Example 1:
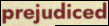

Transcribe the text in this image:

prejudiced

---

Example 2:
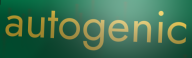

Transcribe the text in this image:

autogenic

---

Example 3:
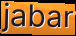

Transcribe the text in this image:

jabar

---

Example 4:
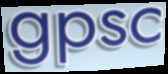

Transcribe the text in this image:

gpsc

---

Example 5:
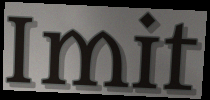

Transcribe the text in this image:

Imit